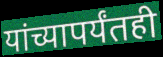
यांच्यापर्यंतही